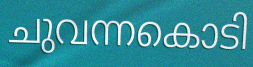
ചുവന്നകൊടി